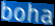
boha